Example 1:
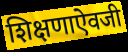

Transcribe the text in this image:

शिक्षणाऐवजी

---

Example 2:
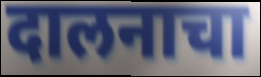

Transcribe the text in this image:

दालनाचा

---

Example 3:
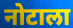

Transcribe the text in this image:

नोटाला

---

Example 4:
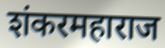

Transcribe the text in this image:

शंकरमहाराज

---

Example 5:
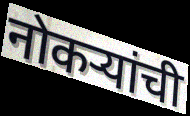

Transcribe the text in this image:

नोकऱ्यांची